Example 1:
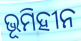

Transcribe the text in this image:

ଭୂମିହୀନ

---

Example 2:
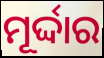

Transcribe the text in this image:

ମୂର୍ଦ୍ଦାର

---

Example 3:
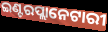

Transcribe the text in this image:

ଇଣ୍ଟରପ୍ଲାନେଟାରୀ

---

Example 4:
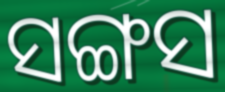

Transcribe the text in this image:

ସଙ୍ଗସ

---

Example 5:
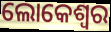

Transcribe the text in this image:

ଲୋକେଶ୍ୱର